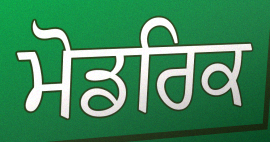
ਮੋਡਰਿਕ